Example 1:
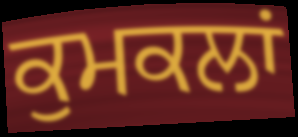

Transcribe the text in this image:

ਕੁਮਕਲਾਂ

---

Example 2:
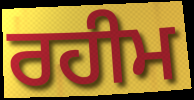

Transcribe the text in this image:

ਰਹੀਮ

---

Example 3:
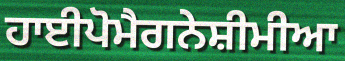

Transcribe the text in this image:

ਹਾਈਪੋਮੈਗਨੇਸ਼ੀਮੀਆ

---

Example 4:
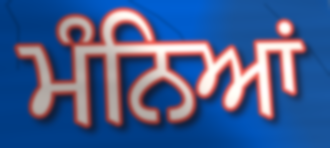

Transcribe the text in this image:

ਮੰਨਿਆਂ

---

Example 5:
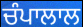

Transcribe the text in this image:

ਚੰਪਾਲਾਲ